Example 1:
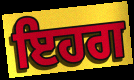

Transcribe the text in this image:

ਇਹਗ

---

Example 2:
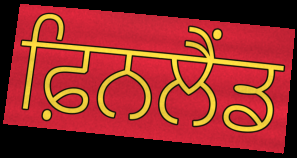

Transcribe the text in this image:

ਫ਼ਿਨਲੈਂਡ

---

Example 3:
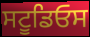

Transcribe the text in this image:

ਸਟੂਡਿਓਸ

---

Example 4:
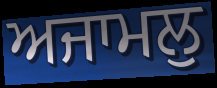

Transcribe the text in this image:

ਅਜਾਮਲੁ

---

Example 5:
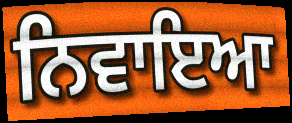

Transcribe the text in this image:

ਨਿਵਾਇਆ